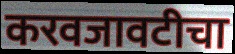
करवजावटीचा